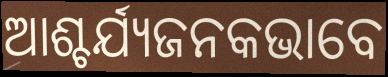
ଆଶ୍ଚର୍ଯ୍ୟଜନକଭାବେ